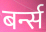
बर्न्स